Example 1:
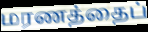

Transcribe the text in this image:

மரணத்தைப்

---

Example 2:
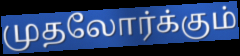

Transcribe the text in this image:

முதலோர்க்கும்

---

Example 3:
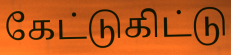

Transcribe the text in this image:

கேட்டுகிட்டு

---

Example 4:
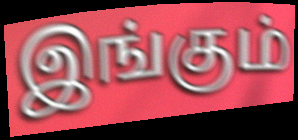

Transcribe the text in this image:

இங்கும்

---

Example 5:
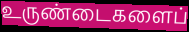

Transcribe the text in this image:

உருண்டைகளைப்